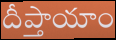
దీప్తాయాం